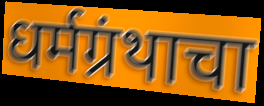
धर्मग्रंथाचा